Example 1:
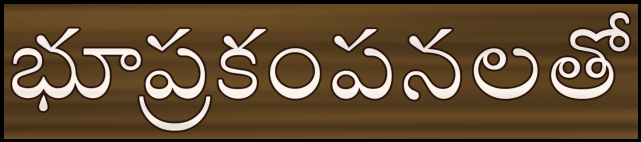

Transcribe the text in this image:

భూప్రకంపనలతో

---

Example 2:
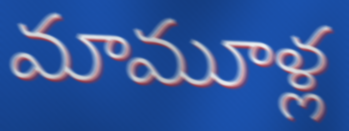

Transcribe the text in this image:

మామూళ్ల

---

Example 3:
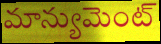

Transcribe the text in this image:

మాన్యుమెంట్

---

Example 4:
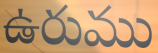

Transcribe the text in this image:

ఉరుము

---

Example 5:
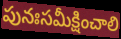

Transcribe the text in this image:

పునఃసమీక్షించాలి